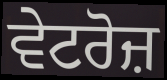
ਵੇਟਰੋਜ਼